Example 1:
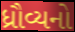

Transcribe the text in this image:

ધ્રૌવ્યનો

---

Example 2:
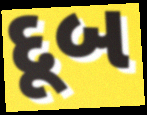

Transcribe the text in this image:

દૂબ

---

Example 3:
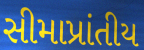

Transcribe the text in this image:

સીમાપ્રાંતીય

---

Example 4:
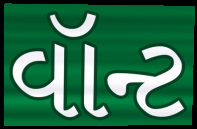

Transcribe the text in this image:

વૉન્ટ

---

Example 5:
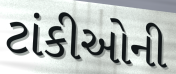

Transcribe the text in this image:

ટાંકીઓની